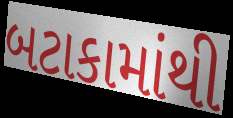
બટાકામાંથી